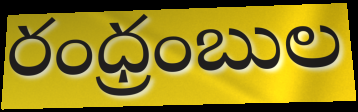
రంధ్రంబుల